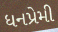
ધનપ્રેમી